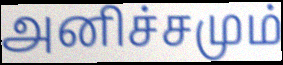
அனிச்சமும்